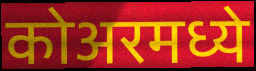
कोअरमध्ये